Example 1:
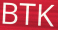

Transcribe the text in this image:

BTK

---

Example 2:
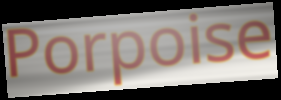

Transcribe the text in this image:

Porpoise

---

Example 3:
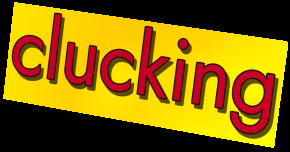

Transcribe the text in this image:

clucking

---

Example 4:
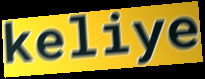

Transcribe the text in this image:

keliye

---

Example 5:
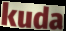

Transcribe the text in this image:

kuda